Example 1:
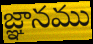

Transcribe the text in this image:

జ్ఞానము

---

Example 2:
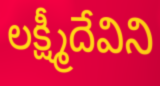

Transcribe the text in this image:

లక్ష్మీదేవిని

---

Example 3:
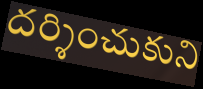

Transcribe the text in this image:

దర్శించుకుని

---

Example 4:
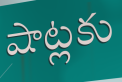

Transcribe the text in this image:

షాట్లకు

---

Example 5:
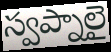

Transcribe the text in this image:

స్వప్నాలై